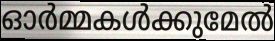
ഓർമ്മകൾക്കുമേൽ